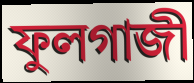
ফুলগাজী